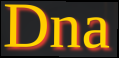
Dna